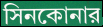
সিনকোনার